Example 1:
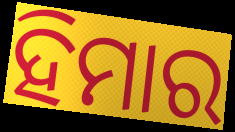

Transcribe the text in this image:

ହିମାର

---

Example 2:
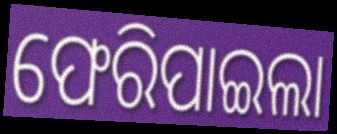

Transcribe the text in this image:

ଫେରିପାଇଲା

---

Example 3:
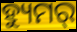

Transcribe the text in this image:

ହ୍ୟୁମର୍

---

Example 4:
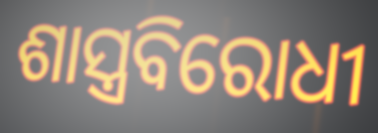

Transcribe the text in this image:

ଶାସ୍ତ୍ରବିରୋଧୀ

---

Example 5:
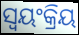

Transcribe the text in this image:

ସ୍ୱୟଂକ୍ରିୟ